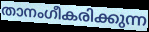
താനംഗീകരിക്കുന്ന